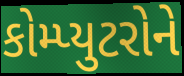
કોમ્પ્યુટરોને